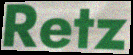
Retz